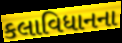
કલાવિધાનના